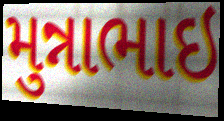
મુન્નાભાઇ